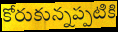
కోరుకున్నప్పటికి